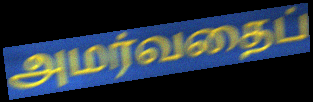
அமர்வதைப்